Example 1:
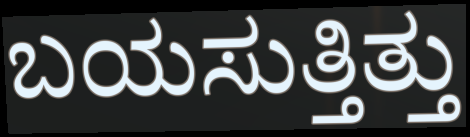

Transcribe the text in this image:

ಬಯಸುತ್ತಿತ್ತು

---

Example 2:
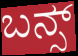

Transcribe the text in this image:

ಬನ್ಸ್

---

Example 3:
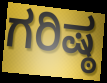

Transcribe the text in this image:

ಗರಿಷ್ಠ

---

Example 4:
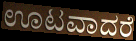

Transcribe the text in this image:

ಊಟವಾದರೆ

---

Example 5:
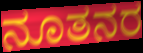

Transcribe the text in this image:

ನೂತನರ